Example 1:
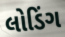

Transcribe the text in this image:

લોડિંગ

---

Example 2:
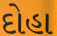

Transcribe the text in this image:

દોહા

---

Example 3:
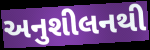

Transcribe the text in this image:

અનુશીલનથી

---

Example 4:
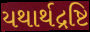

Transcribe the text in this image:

યથાર્થદ્રષ્ટિ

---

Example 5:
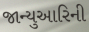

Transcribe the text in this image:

જાન્યુઆરિની